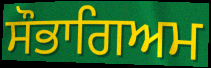
ਸੌਭਾਗਿਅਮ